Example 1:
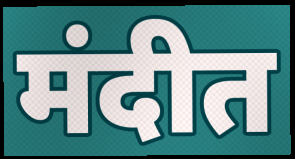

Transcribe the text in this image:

मंदीत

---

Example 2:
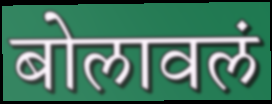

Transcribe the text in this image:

बोलावलं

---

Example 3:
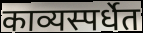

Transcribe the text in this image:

काव्यस्पर्धेत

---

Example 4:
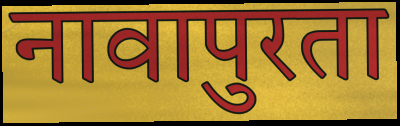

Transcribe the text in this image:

नावापुरता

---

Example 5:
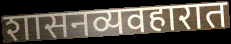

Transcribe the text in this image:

शासनव्यवहारात